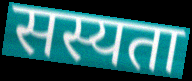
सस्यता